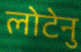
लोटेनु